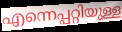
എന്നെപ്പറ്റിയുള്ള